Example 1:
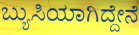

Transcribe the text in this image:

ಬ್ಯುಸಿಯಾಗಿದ್ದೇನೆ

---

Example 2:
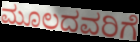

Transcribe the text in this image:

ಮೂಲದವರಿಗೆ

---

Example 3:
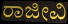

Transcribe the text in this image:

ರಾಜೀವಿ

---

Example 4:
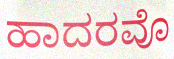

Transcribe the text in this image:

ಹಾದರವೊ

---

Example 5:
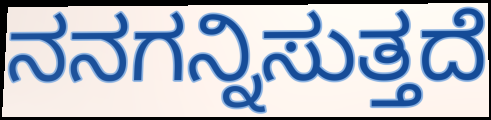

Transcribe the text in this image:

ನನಗನ್ನಿಸುತ್ತದೆ